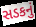
સડકનું